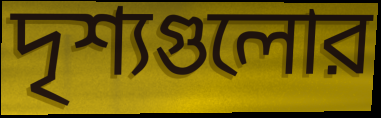
দৃশ্যগুলোর